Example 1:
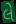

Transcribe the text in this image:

લે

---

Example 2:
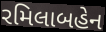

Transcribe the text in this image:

રમિલાબહેન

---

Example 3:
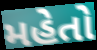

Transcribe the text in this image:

મહેતો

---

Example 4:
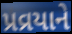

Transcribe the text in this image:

પ્રવ્રયાને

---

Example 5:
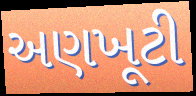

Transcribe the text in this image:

અણખૂટી